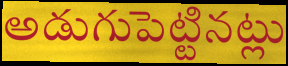
అడుగుపెట్టినట్లు